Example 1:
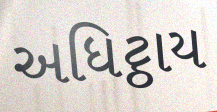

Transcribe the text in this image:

અધિટ્ઠાય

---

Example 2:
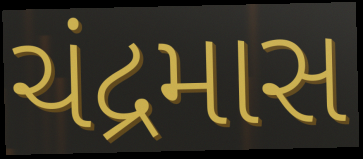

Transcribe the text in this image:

ચંદ્રમાસ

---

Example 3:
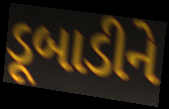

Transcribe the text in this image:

ડૂબાડીને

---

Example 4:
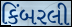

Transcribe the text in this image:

કિંબરલી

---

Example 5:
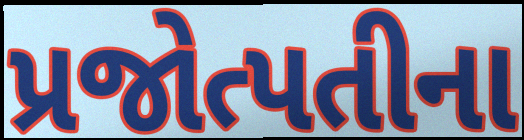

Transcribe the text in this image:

પ્રજોત્પતીના